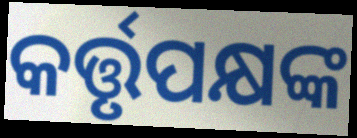
କର୍ତ୍ତୃପକ୍ଷଙ୍କ